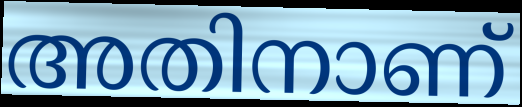
അതിനാണ്